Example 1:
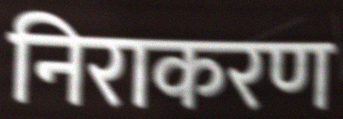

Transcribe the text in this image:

निराकरण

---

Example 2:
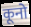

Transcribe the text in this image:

कूनो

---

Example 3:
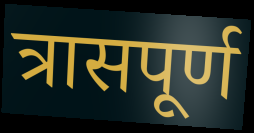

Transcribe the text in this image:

त्रासपूर्ण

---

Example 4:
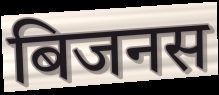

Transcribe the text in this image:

बिजनस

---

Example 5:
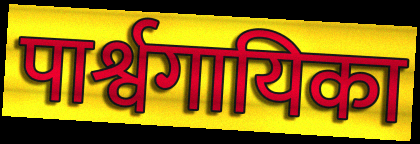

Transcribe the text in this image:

पार्श्वगायिका